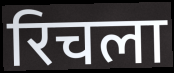
रिचला